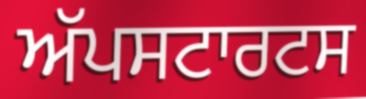
ਅੱਪਸਟਾਰਟਸ